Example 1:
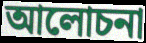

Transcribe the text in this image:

আলোচনা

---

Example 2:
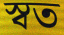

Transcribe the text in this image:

স্বত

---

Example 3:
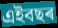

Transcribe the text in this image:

এইবছৰ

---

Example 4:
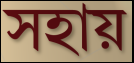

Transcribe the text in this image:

সহায়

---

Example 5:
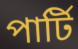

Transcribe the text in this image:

পাৰ্টি